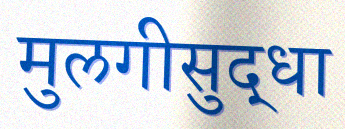
मुलगीसुद्धा